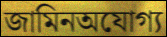
জামিনঅযোগ্য